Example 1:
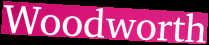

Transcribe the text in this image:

Woodworth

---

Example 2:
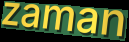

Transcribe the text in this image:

zaman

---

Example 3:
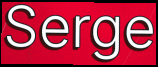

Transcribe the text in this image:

Serge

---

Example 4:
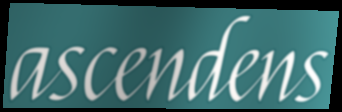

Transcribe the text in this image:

ascendens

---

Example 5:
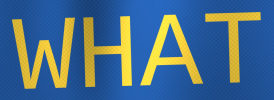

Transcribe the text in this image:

WHAT